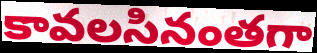
కావలసినంతగా